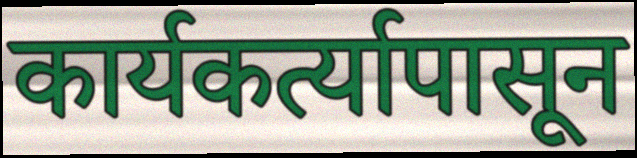
कार्यकर्त्यापासून